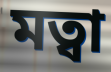
মত্বা